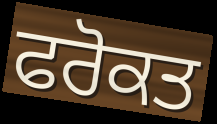
ਫਰੋਕਤ